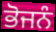
ਭੋਜਨੰ